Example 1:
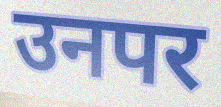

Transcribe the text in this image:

उनपर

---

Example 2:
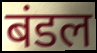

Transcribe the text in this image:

बंडल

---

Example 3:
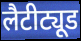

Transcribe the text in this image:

लैटीट्यूड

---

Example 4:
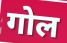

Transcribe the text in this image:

गोल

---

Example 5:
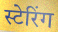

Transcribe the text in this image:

स्टेरिंग